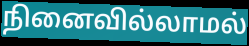
நினைவில்லாமல்